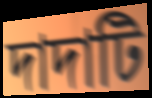
দাদাটি